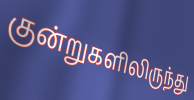
குன்றுகளிலிருந்து